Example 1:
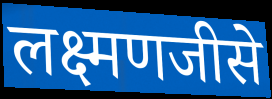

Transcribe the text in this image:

लक्ष्मणजीसे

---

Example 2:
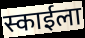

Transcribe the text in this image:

स्काईला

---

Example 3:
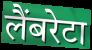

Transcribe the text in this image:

लैंबरेटा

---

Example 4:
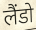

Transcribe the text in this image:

लैंडो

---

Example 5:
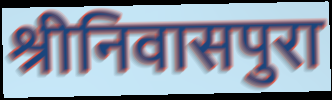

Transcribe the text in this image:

श्रीनिवासपुरा